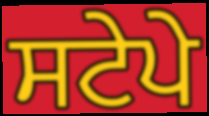
ਸਟੇਪੇ